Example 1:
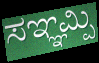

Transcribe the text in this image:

ಸಞ್ಞಮ್ಪಿ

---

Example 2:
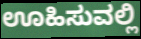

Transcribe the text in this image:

ಊಹಿಸುವಲ್ಲಿ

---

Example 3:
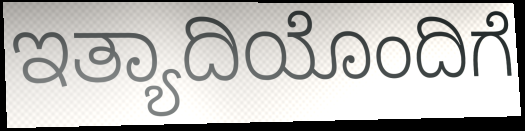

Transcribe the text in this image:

ಇತ್ಯಾದಿಯೊಂದಿಗೆ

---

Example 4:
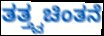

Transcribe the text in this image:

ತತ್ತ್ವಚಿಂತನೆ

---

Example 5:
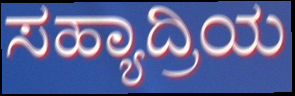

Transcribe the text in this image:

ಸಹ್ಯಾದ್ರಿಯ